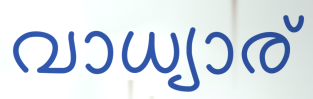
വാധ്യാര്